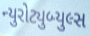
ન્યુરોટ્યુબ્યુલ્સ